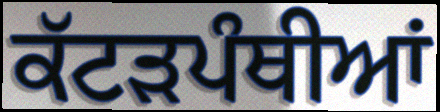
ਕੱਟੜਪੰਥੀਆਂ